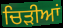
ਚਿੜੀਆਂ